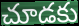
చూడకు